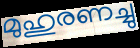
മുഹുരണച്ചു